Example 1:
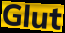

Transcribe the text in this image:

Glut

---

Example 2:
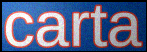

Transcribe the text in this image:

carta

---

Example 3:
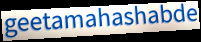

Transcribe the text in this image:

geetamahashabde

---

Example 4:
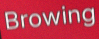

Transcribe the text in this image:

Browing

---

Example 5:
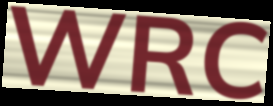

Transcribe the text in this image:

WRC